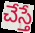
చేస్తే